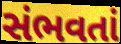
સંભવતાં